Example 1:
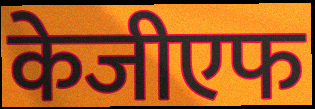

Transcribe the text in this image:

केजीएफ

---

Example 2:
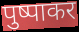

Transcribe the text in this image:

पुष्पाकर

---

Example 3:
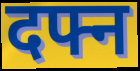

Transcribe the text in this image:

दफ्न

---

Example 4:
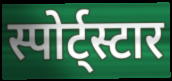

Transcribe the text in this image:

स्पोर्ट्स्टार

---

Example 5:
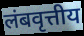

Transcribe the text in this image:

लंबवृत्तीय